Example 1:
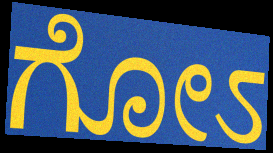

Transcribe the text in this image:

ಗೋಽ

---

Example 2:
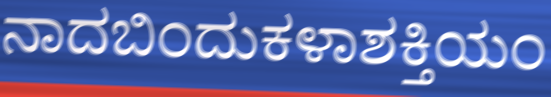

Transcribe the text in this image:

ನಾದಬಿಂದುಕಳಾಶಕ್ತಿಯಂ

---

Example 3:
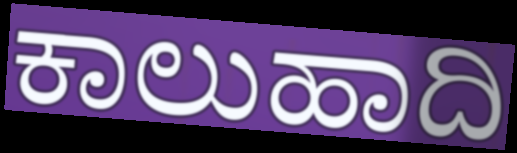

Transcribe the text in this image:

ಕಾಲುಹಾದಿ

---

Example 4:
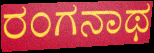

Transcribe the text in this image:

ರಂಗನಾಥ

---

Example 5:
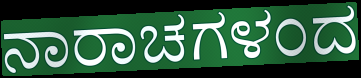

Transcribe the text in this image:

ನಾರಾಚಗಳಂದ